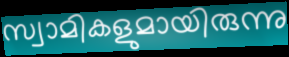
സ്വാമികളുമായിരുന്നു